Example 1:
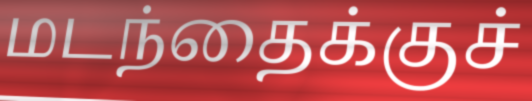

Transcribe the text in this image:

மடந்தைக்குச்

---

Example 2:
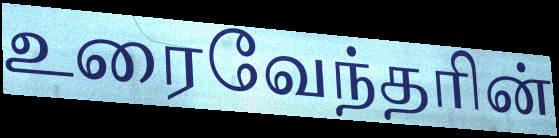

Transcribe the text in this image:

உரைவேந்தரின்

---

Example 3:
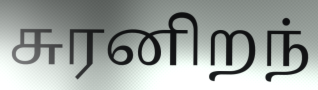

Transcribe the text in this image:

சுரனிறந்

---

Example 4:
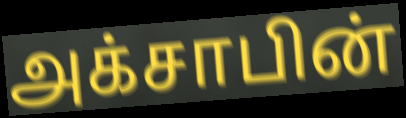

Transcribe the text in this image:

அக்சாபின்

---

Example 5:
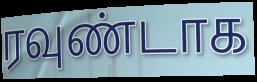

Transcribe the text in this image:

ரவுண்டாக